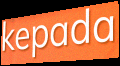
kepada